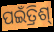
ପଇଁତ୍ରିଶ୍